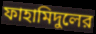
ফাহামিদুলের